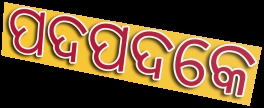
ପଦପଦକେ